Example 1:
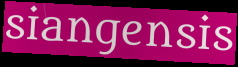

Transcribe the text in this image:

siangensis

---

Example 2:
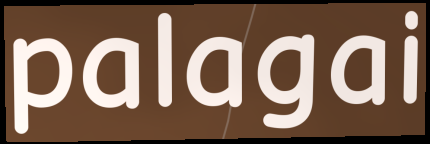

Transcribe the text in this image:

palagai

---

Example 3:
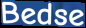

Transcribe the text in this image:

Bedse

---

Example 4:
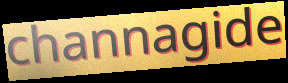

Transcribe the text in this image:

channagide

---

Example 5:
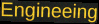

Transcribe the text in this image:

Engineeing